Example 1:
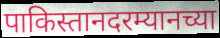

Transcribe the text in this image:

पाकिस्तानदरम्यानच्या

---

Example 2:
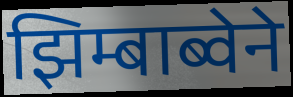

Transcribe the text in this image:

झिम्बाब्वेने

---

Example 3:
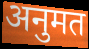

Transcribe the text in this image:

अनुमत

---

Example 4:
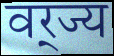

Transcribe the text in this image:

वर्ज्य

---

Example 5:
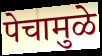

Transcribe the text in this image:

पेचामुळे